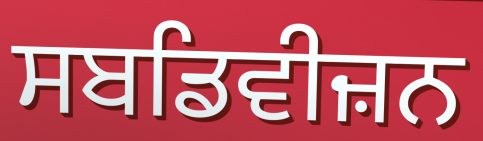
ਸਬਡਿਵੀਜ਼ਨ